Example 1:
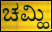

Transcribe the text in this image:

ಚಮ್ಹಿ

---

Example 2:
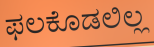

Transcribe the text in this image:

ಫಲಕೊಡಲಿಲ್ಲ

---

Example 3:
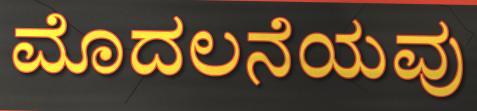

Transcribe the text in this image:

ಮೊದಲನೆಯವು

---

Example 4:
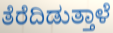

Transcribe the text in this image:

ತೆರೆದಿಡುತ್ತಾಳೆ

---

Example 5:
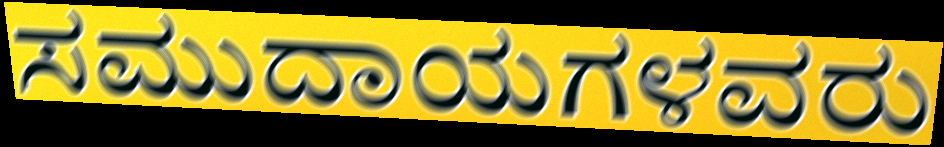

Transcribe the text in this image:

ಸಮುದಾಯಗಳವರು